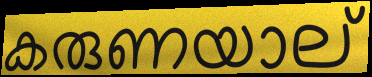
കരുണയാല്